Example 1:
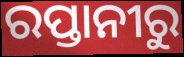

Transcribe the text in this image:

ରପ୍ତାନୀରୁ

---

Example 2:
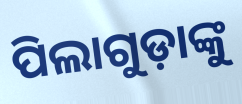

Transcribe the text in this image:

ପିଲାଗୁଡ଼ାଙ୍କୁ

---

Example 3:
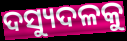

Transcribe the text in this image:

ଦସ୍ୟୁଦଳକୁ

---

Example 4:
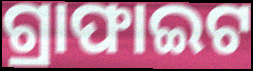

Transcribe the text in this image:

ଗ୍ରାଫାଇଟ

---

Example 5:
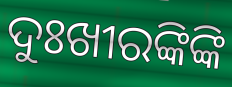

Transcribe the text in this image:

ଦୁଃଖୀରଙ୍କିଙ୍କି